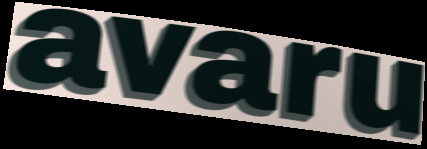
avaru